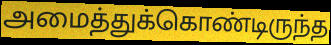
அமைத்துக்கொண்டிருந்த